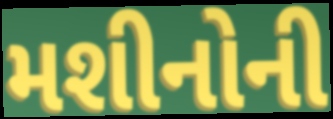
મશીનોની